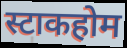
स्टाकहोम